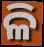
ଳି